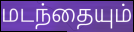
மடந்தையும்